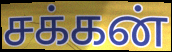
சக்கன்